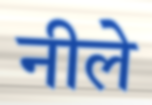
नीले